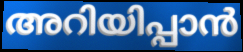
അറിയിപ്പാൻ